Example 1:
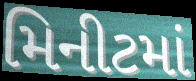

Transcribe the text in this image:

મિનીટમાં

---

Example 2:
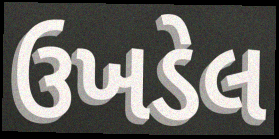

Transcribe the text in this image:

ઉખડેલ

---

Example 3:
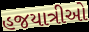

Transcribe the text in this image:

હજયાત્રીઓ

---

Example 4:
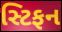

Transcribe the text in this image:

સ્ટિફન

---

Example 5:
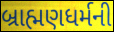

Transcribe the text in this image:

બ્રાહ્મણધર્મની